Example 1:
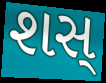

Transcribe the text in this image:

શસ્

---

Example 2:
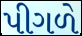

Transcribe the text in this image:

પીગળે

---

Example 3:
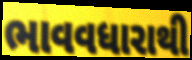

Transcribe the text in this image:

ભાવવધારાથી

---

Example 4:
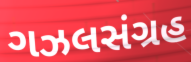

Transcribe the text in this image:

ગઝલસંગ્રહ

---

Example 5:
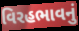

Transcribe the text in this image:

વિરહભાવનું